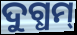
ଦୁଗ୍ଧମ୍